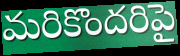
మరికొందరిపై